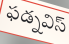
ఫడ్నవిస్